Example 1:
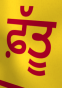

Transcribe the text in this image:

ਫ਼ੱਤੂ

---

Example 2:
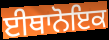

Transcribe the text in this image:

ਈਥਾਨੋਇਕ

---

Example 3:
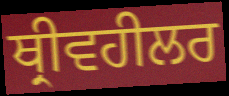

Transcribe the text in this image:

ਥ੍ਰੀਵਹੀਲਰ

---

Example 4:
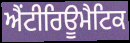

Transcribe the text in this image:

ਐਂਟੀਰਿਊਮੈਟਿਕ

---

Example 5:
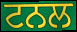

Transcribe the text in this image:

ਟਨਲ